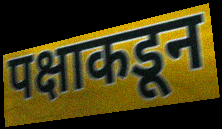
पक्षाकडून